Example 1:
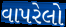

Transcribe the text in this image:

વાપરેલો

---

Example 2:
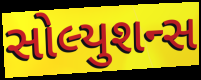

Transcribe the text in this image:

સોલ્યુશન્સ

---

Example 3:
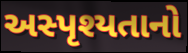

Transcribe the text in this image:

અસ્પૃશ્યતાનો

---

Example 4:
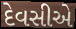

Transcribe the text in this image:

દેવસીએ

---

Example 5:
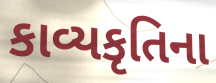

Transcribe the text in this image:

કાવ્યકૃતિના